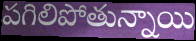
పగిలిపోతున్నాయి